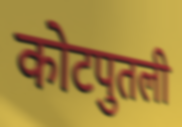
कोटपुतली